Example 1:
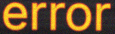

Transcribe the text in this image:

error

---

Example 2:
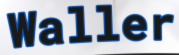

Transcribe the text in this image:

Waller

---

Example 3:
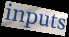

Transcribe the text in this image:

inputs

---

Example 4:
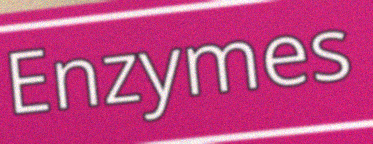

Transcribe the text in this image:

Enzymes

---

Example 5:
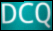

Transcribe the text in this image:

DCQ